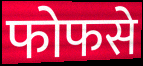
फोफसे